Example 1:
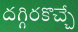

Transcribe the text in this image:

దగ్గిరకొచ్చే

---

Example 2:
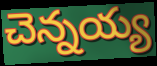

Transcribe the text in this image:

చెన్నయ్య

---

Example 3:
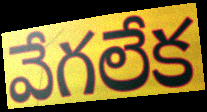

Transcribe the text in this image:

వేగలేక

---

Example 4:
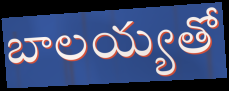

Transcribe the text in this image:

బాలయ్యతో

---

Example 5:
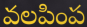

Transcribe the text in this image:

వలపింప